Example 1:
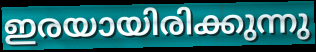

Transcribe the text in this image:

ഇരയായിരിക്കുന്നു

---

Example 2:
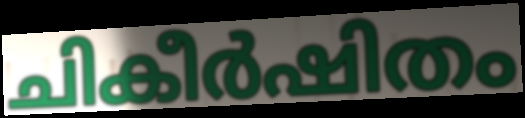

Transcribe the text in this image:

ചികീർഷിതം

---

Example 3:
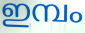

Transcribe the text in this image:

ഇമ്പം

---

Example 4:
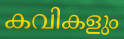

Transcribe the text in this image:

കവികളും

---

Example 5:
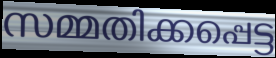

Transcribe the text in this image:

സമ്മതിക്കപ്പെട്ട